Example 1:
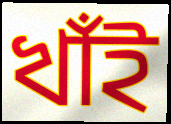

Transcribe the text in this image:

খাঁই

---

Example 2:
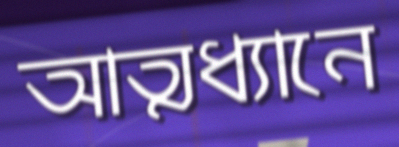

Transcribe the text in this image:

আত্মধ্যানে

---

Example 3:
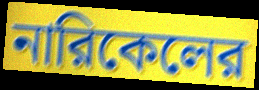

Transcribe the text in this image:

নারিকেলের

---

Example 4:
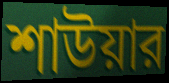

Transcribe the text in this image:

শাউয়ার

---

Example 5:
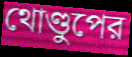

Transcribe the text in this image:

থোণ্ডুপের